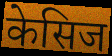
केसिज